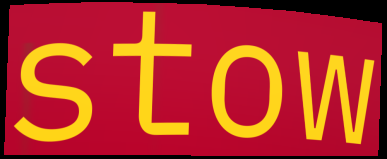
stow